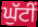
ਘੁੱਟੀਂ